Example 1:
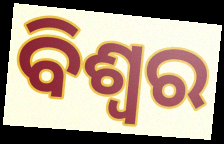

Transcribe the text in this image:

ବିଶ୍ଵର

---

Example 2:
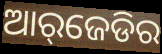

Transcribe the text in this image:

ଆର୍‌ଜେଡିର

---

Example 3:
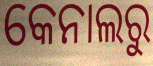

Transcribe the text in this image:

କେନାଲରୁ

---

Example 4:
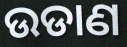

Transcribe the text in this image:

ଉଡାଣ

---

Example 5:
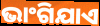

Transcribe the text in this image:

ଭାଂଗିଯାଏ